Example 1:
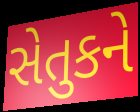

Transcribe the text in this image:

સેતુકને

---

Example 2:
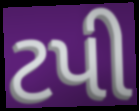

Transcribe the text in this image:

ટપી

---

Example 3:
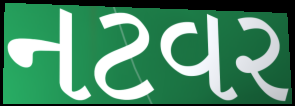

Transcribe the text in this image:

નટવર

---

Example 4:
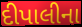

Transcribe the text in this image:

દીપાલીના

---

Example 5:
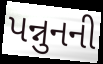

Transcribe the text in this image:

પન્નુનની